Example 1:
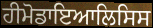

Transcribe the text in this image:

ਹੀਮੋਡਾਇਆਲਿਸਿਸ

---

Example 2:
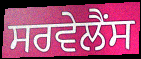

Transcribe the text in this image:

ਸਰਵੇਲੈਂਸ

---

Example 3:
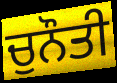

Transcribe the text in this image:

ਚੁਨੌਤੀ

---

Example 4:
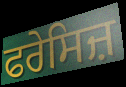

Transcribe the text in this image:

ਫਰੇਸਿਜ਼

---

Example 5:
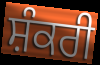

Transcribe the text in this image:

ਸ਼ੰਕਰੀ